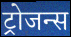
ट्रोजन्स